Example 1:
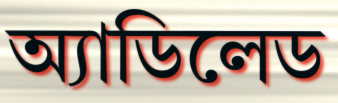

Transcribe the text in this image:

অ্যাডিলেড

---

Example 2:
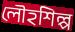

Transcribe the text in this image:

লৌহশিল্প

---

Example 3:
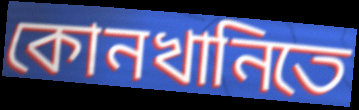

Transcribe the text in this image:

কোনখানিতে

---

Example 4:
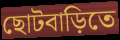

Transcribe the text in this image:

ছোটবাড়িতে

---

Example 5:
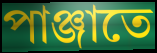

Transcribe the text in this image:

পাঞ্জাতে